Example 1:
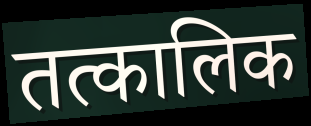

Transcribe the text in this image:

तत्कालिक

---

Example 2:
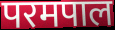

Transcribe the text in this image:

परमपाल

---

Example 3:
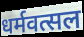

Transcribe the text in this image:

धर्मवत्सल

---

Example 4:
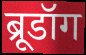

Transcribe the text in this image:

ब्रूडॉग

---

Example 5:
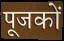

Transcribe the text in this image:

पूजकों